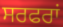
ਸਰਫਰਾਂ